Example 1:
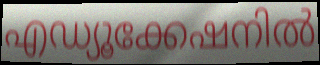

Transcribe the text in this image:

എഡ്യൂക്കേഷനിൽ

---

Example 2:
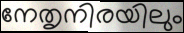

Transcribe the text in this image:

നേതൃനിരയിലും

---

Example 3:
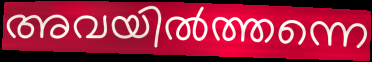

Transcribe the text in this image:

അവയിൽത്തന്നെ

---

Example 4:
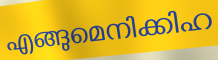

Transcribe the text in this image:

എങ്ങുമെനിക്കിഹ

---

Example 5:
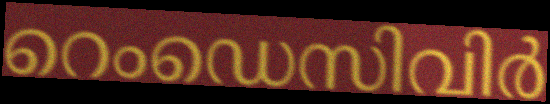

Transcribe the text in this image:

റെംഡെസിവിർ